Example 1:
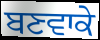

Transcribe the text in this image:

ਬਣਵਾਕੇ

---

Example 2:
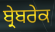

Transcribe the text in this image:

ਬ੍ਰੇਬਰੇਕ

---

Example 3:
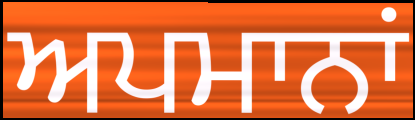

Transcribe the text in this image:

ਅਪਮਾਨਾਂ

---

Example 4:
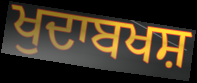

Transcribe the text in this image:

ਖੁਦਾਬਖਸ਼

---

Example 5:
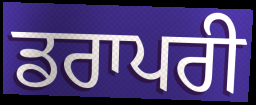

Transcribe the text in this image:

ਡਰਾਪਰੀ